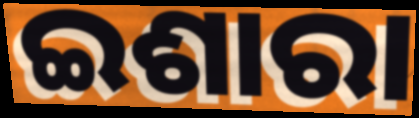
ଇଶାରା